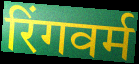
रिंगवर्म